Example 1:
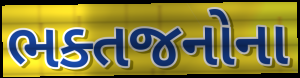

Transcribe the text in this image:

ભક્તજનોના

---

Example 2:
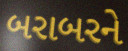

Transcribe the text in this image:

બરાબરને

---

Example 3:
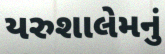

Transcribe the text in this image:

યરુશાલેમનું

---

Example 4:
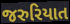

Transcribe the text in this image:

જરુરિયાત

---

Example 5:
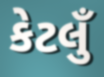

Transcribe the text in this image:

કેટલુઁ